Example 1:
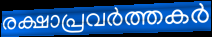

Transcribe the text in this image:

രക്ഷാപ്രവർത്തകർ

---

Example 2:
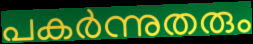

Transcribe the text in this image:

പകർന്നുതരും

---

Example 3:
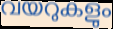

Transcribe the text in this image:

വയറുകളും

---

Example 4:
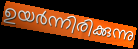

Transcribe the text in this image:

ഉയർന്നിരിക്കുന്നു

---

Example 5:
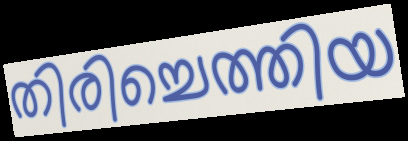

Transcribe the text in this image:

തിരിച്ചെത്തിയ